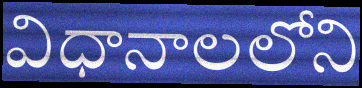
విధానాలలోని